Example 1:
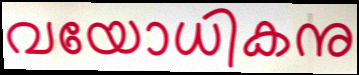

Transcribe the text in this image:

വയോധികനു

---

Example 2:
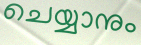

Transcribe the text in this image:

ചെയ്യാനും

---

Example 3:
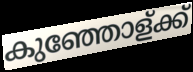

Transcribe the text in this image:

കുഞ്ഞോള്ക്ക്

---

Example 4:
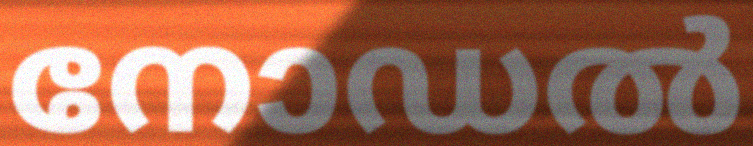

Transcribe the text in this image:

നോഡൽ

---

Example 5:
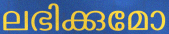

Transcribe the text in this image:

ലഭിക്കുമോ